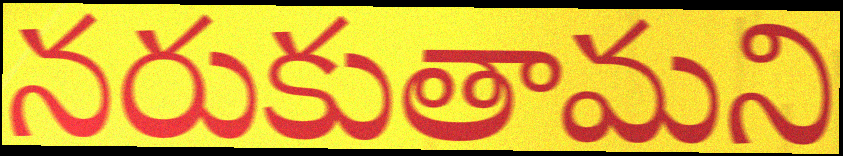
నరుకుతామని